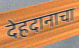
देहदानाचा